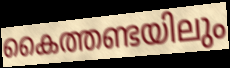
കൈത്തണ്ടയിലും